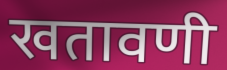
खतावणी